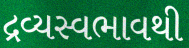
દ્રવ્યસ્વભાવથી